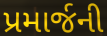
પ્રમાર્જની